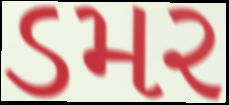
ડમર